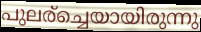
പുലര്ച്ചെയായിരുന്നു